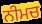
ਨੀਮਚ